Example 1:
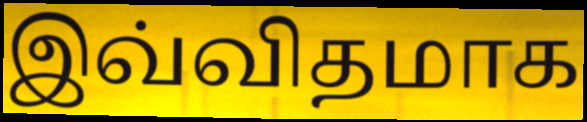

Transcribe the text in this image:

இவ்விதமாக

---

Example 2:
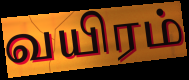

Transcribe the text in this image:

வயிரம்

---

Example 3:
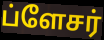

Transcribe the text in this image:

ப்ளேசர்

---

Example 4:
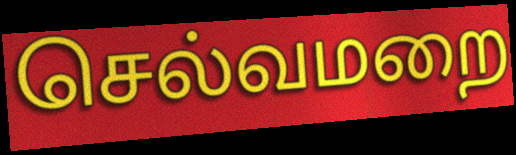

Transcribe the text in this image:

செல்வமறை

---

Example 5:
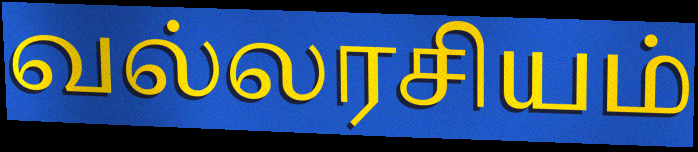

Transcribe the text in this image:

வல்லரசியம்